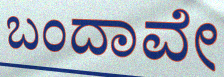
ಬಂದಾವೇ